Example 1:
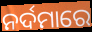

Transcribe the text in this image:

ନର୍ଦମାରେ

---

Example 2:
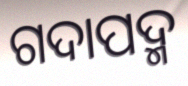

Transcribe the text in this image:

ଗଦାପଦ୍ମ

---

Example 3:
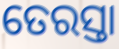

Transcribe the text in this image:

ତେରସ୍ତା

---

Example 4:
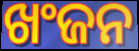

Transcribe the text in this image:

ଖଂଜନ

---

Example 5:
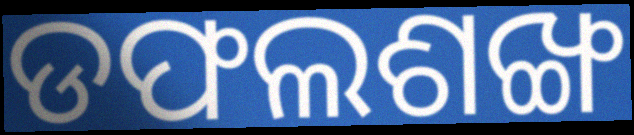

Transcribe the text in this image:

ଡଫଲଶଙ୍ଖ